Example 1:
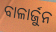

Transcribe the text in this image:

ବାଳାର୍ଜୁନ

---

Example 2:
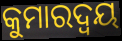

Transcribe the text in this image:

କୁମାରଦ୍ଵୟ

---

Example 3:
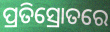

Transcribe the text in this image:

ପ୍ରତିସ୍ରୋତରେ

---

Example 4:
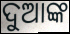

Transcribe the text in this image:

ଦୁଆଙ୍କ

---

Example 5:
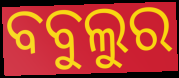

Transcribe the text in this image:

ବବୁଲୁର